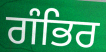
ਗੰਭਿਰ